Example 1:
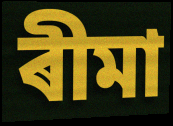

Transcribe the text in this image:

ৰীমা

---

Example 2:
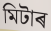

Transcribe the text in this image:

মিটাৰ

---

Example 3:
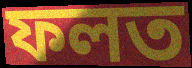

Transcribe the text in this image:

ফলত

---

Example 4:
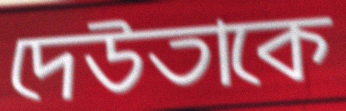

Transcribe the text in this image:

দেউতাকে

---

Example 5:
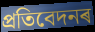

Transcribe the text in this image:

প্ৰতিবেদনৰ